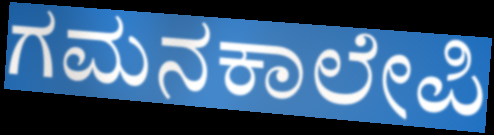
ಗಮನಕಾಲೇಪಿ